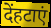
देंहटाएं